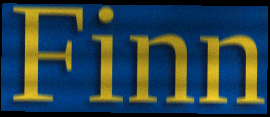
Finn